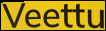
Veettu